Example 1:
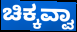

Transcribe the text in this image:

ಚಿಕ್ಕವ್ವಾ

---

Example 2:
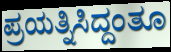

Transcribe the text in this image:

ಪ್ರಯತ್ನಿಸಿದ್ದಂತೂ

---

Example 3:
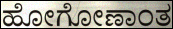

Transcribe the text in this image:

ಹೋಗೋಣಾಂತ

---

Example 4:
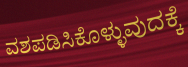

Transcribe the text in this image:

ವಶಪಡಿಸಿಕೊಳ್ಳುವುದಕ್ಕೆ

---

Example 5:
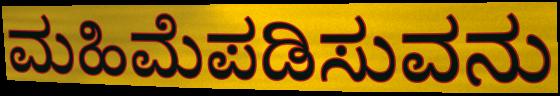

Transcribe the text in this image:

ಮಹಿಮೆಪಡಿಸುವನು